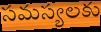
సమస్యలకు